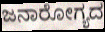
ಜನಾರೋಗ್ಯದ